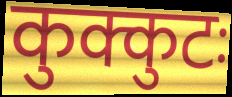
कुक्कुटः